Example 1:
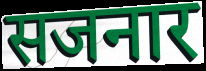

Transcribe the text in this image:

सजनार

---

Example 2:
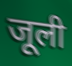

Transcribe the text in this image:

जूली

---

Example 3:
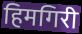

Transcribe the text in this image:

हिमगिरी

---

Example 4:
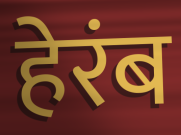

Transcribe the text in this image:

हेरंब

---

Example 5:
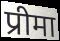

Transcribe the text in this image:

प्रीमा